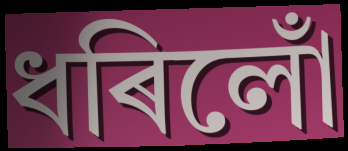
ধৰিলোঁ